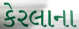
કેરલાના